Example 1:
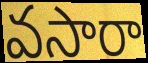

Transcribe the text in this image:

వసారా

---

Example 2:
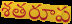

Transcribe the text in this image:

శతరూప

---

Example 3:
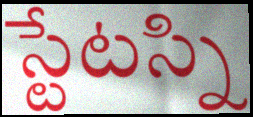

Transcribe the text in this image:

స్టేటస్ని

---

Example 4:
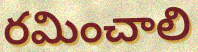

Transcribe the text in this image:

రమించాలి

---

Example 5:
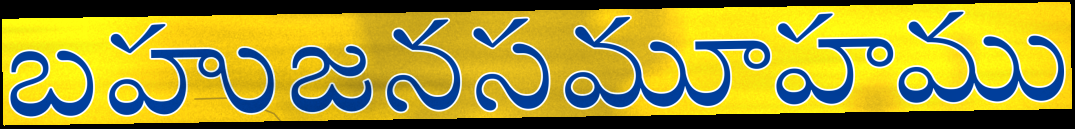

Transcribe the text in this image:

బహుజనసమూహము